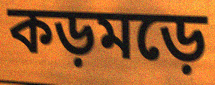
কড়মড়ে